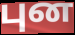
புன